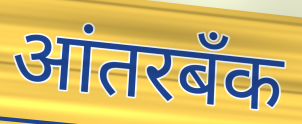
आंतरबँक